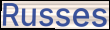
Russes